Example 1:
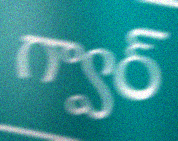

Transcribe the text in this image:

గ్వార్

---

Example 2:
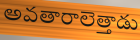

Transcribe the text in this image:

అవతారాలెత్తాడు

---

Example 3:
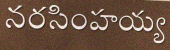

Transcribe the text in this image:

నరసింహయ్య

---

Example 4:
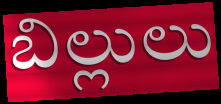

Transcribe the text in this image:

బిల్లులు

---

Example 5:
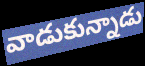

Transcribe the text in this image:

వాడుకున్నాడు